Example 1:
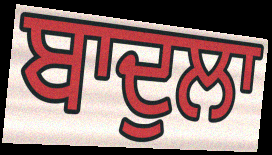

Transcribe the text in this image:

ਬਾਦੁਲਾ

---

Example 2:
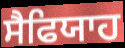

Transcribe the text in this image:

ਸੈਫਿਯਾਹ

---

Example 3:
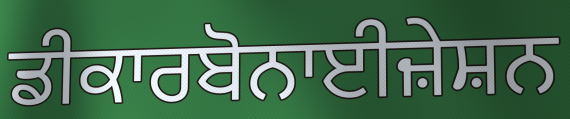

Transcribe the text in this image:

ਡੀਕਾਰਬੋਨਾਈਜ਼ੇਸ਼ਨ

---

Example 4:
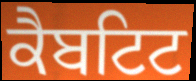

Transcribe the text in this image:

ਕੈਬਟਿਟ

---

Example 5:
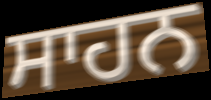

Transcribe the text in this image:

ਸਾਹਨ